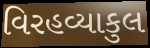
વિરહવ્યાકુલ